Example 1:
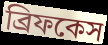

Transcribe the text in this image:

ব্রিফকেস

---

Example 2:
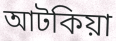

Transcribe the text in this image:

আটকিয়া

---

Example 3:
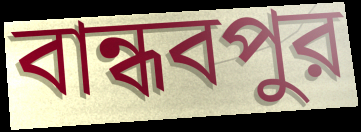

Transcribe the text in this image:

বান্ধবপুর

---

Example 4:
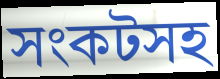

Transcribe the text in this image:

সংকটসহ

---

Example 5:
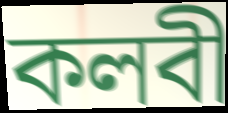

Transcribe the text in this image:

কলবী